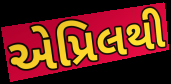
એપ્રિલથી